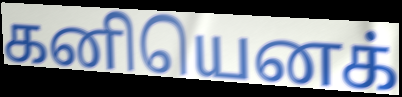
கனியெனக்